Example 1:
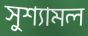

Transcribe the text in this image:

সুশ্যামল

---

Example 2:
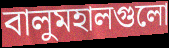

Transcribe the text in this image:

বালুমহালগুলো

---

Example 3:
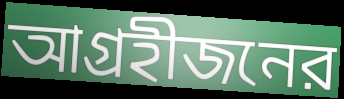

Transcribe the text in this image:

আগ্রহীজনের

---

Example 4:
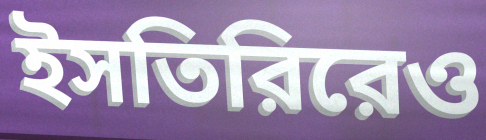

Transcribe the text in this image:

ইসতিরিরেও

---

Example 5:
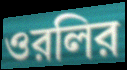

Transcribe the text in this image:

ওরলির